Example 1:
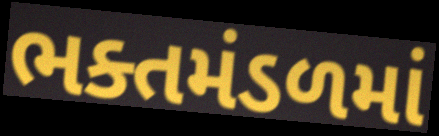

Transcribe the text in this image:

ભક્તમંડળમાં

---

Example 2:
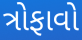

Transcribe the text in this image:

ત્રોફાવો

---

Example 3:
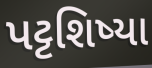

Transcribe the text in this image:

પટ્ટશિષ્યા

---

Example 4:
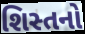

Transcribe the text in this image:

શિસ્તનો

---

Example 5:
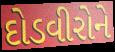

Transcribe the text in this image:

દોડવીરોને